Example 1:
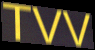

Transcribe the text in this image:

TVV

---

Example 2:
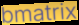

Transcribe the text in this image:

bmatrix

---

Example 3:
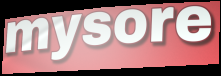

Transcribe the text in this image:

mysore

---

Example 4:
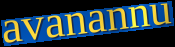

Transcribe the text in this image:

avanannu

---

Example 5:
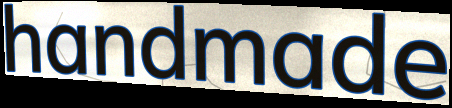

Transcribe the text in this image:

handmade